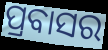
ପ୍ରବାସର